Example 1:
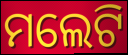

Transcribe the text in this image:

ମଲେଟି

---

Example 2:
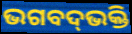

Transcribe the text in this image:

ଭଗବଦ୍‌ଭକ୍ତି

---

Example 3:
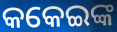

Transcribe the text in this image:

କକେଇଙ୍କ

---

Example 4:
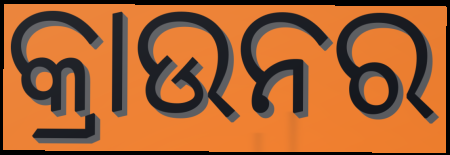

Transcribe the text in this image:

କ୍ରାଉନର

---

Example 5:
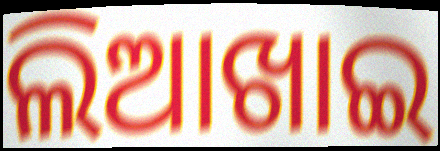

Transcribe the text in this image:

ଲିଆଖାଇ